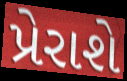
પ્રેરાશે